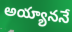
అయ్యాననే